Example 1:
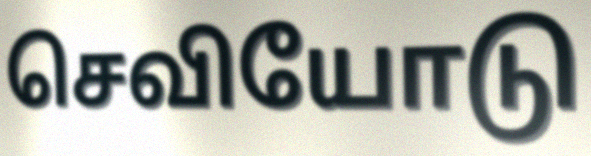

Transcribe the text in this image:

செவியோடு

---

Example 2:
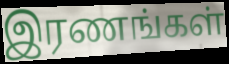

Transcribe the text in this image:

இரணங்கள்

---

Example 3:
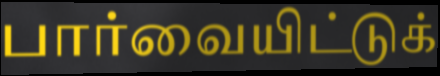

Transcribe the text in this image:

பார்வையிட்டுக்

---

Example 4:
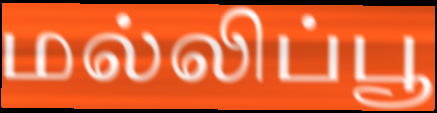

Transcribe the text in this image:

மல்லிப்பூ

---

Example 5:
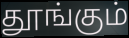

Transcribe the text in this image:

தூங்கும்